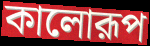
কালোরূপ